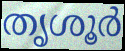
തൃശൂർ